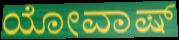
ಯೋವಾಷ್